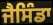
ਜੈਸਿੰਡਾ